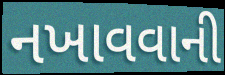
નખાવવાની